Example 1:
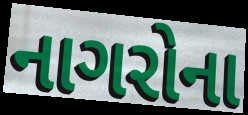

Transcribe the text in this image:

નાગરોના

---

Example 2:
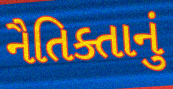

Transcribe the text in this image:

નૈતિક્તાનું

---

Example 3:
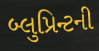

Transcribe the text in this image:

બ્લુપ્રિન્ટની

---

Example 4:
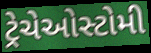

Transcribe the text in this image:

ટ્રેચેઓસ્ટોમી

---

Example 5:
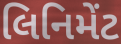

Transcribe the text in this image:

લિનિમેંટ